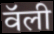
वॅली